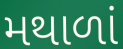
મથાળાં